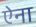
ऐना